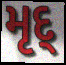
મૃદ્